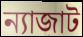
ন্যাজাট